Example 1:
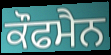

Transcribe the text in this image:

ਕੌਫਮੈਨ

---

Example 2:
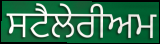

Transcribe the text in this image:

ਸਟੈਲੇਰੀਅਮ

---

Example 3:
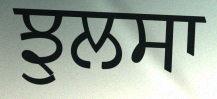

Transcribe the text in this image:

ਝੁਲਸਾ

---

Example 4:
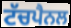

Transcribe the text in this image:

ਟੱਚਪੈਨਲ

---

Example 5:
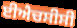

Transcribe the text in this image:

ਈਐਚਸੀਸੀ